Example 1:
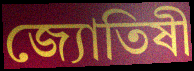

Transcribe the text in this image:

জ্যোতিষী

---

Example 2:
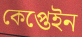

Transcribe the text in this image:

কেপ্তেইন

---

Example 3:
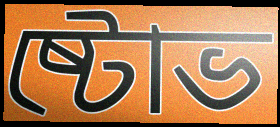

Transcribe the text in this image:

ষ্টোভ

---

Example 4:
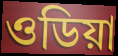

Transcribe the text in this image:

ওডিয়া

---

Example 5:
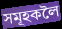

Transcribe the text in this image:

সমূহকলৈ